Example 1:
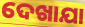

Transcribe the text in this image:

ଦେଖାଯା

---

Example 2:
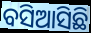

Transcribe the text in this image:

ବସିଆସିଛି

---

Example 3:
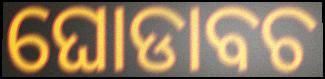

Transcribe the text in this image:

ଘୋଡାବଚ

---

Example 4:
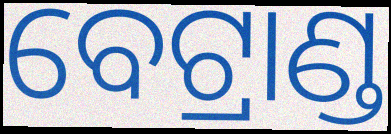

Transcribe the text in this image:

ବେଟ୍ରାଣ୍ଡ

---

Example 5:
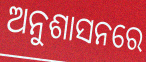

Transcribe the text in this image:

ଅନୁଶାସନରେ